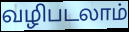
வழிபடலாம்